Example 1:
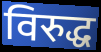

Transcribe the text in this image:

विरुद्ध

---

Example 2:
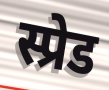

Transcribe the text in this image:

स्प्रेड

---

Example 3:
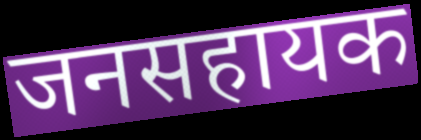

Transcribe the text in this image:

जनसहायक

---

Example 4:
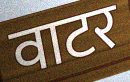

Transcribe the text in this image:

वाटर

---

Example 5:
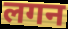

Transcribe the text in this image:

लगन